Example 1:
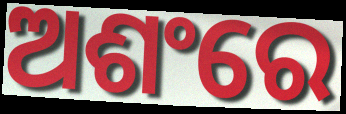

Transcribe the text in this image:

ଅଶଂରେ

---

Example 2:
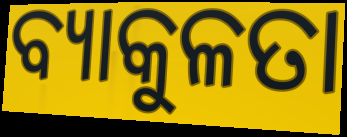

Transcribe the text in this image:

ବ୍ୟାକୁଳତା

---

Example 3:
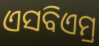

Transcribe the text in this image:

ଏସବିଏମ୍ର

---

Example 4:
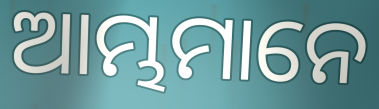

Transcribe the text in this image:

ଆମ୍ଭମାନେ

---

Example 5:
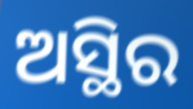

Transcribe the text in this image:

ଅସ୍ଥିର